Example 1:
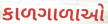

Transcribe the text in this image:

કાળગાળાઓ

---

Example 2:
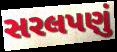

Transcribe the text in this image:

સરલપણું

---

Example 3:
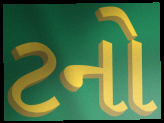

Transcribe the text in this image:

ટનો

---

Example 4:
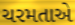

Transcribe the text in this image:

ચરમતાએ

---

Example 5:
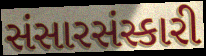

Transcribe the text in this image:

સંસારસંસ્કારી